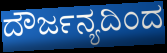
ದೌರ್ಜನ್ಯದಿಂದ